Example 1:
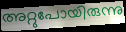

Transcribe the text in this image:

അറ്റുപോയിരുന്നു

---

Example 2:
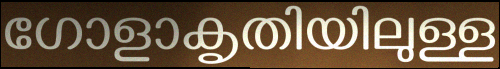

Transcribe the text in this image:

ഗോളാകൃതിയിലുള്ള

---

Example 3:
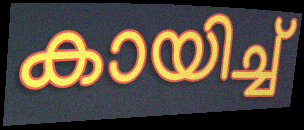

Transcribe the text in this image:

കായിച്ച്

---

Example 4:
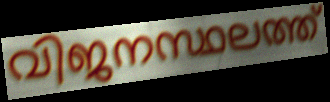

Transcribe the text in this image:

വിജനസ്ഥലത്ത്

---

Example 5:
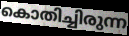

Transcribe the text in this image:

കൊതിച്ചിരുന്ന